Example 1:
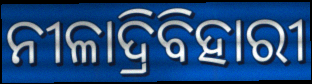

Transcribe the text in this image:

ନୀଳାଦ୍ରିବିହାରୀ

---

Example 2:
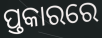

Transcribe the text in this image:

ପ୍ତକାରରେ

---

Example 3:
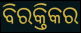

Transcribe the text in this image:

ବିରକ୍ତିକର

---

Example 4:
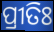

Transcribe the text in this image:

ପ୍ରୀତିଃ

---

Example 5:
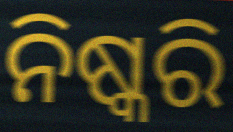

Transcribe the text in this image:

ନିଷ୍କରି